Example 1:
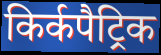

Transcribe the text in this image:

किर्कपैट्रिक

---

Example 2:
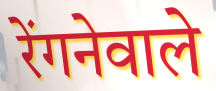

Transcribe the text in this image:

रेंगनेवाले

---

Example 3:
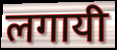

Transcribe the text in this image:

लगायी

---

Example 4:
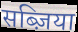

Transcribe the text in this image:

सब्ज़िया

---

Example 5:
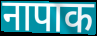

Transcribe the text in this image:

नापाक